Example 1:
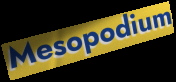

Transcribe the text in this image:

Mesopodium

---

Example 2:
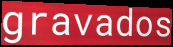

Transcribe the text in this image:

gravados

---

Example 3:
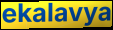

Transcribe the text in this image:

ekalavya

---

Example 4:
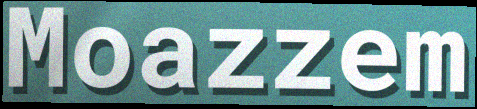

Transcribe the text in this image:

Moazzem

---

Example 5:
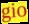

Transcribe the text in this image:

gio